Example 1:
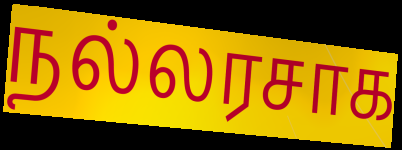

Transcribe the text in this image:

நல்லரசாக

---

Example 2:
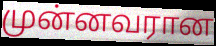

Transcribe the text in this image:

முன்னவரான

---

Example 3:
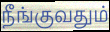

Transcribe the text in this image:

நீங்குவதும்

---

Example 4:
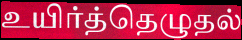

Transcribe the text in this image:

உயிர்த்தெழுதல்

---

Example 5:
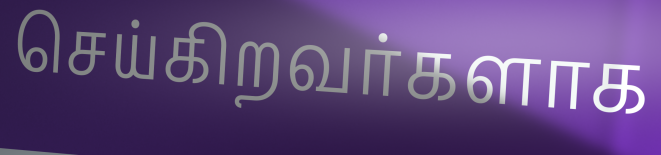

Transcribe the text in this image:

செய்கிறவர்களாக